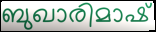
ബുഖാരിമാഷ്